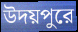
উদয়পুরে